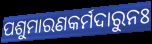
ପଶୁମାରଣକର୍ମଦାରୁନଃ